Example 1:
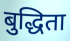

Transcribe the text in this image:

बुद्धिता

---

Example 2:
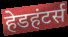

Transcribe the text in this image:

हेडहंटर्स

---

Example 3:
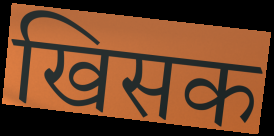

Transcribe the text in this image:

खिसक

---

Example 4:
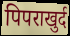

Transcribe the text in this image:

पिपराखुर्द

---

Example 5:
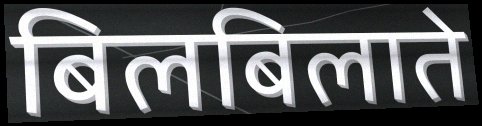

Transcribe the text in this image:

बिलबिलाते